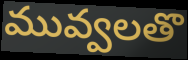
మువ్వలతొ